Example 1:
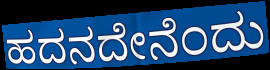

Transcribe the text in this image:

ಹದನದೇನೆಂದು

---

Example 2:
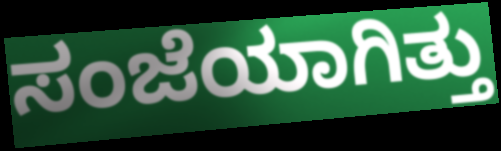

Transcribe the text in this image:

ಸಂಜೆಯಾಗಿತ್ತು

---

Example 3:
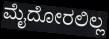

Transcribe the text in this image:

ಮೈದೋರಲಿಲ್ಲ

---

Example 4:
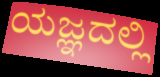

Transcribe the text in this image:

ಯಜ್ಞದಲ್ಲಿ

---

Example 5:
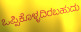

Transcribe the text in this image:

ಒಪ್ಪಿಕೊಳ್ಳದಿರಬಹುದು